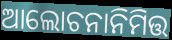
ଆଲୋଚନାନିମିତ୍ତ